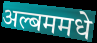
अल्बममधे